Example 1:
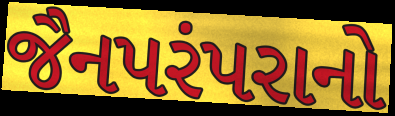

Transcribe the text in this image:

જૈનપરંપરાનો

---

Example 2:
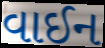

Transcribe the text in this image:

વાઈન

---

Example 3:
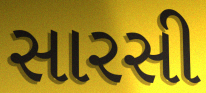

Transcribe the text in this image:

સારસી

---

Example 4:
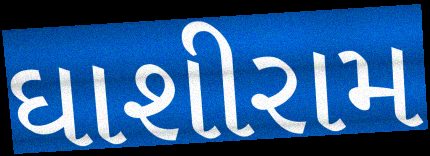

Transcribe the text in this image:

ઘાશીરામ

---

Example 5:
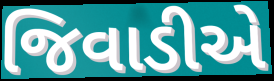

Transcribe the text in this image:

જિવાડીએ